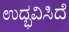
ಉದ್ಭವಿಸಿದೆ